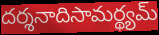
దర్శనాదిసామర్థ్యమ్